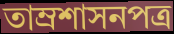
তাম্রশাসনপত্র